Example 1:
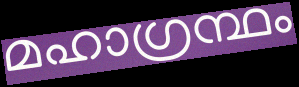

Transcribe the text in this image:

മഹാഗ്രന്ഥം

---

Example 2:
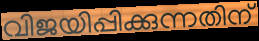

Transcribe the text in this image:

വിജയിപ്പിക്കുന്നതിന്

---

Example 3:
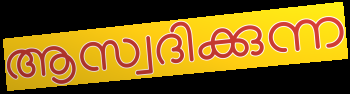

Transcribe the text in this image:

ആസ്വദിക്കുന്ന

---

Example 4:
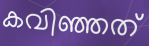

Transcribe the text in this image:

കവിഞ്ഞത്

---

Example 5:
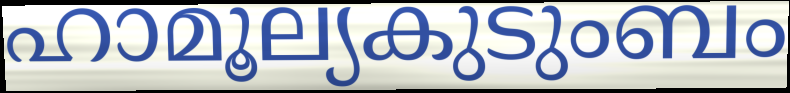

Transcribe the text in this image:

ഹാമൂല്യകുടുംബം